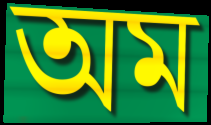
অম